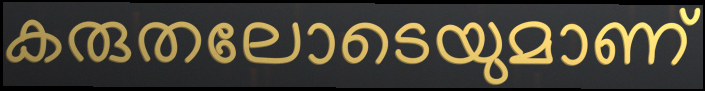
കരുതലോടെയുമാണ്